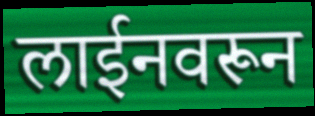
लाईनवरून